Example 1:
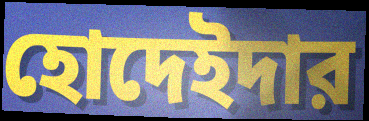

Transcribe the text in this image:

হোদেইদার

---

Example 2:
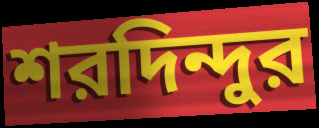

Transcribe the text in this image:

শরদিন্দুর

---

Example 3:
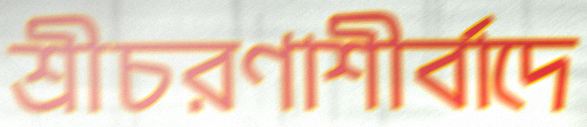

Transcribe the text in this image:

শ্রীচরণাশীর্বাদে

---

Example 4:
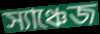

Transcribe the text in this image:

স্যাঞ্চেজ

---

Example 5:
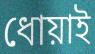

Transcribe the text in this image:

ধোয়াই